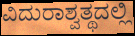
ವಿದುರಾಶ್ವತ್ಥದಲ್ಲಿ